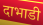
दाभाडी